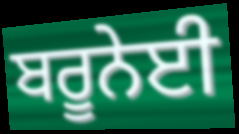
ਬਰੂਨੇਈ